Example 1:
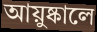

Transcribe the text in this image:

আয়ুষ্কালে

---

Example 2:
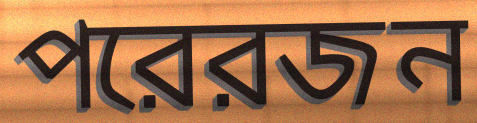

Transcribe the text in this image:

পরেরজন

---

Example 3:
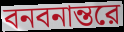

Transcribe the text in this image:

বনবনান্তরে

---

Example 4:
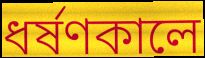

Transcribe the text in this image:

ধর্ষণকালে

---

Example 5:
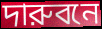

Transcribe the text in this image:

দারুবনে